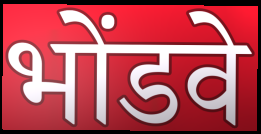
भोंडवे